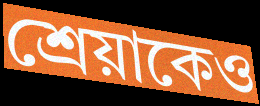
শ্রেয়াকেও